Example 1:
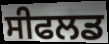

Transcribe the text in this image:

ਸੀਫਲਡ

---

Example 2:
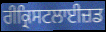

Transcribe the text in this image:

ਰੀਕ੍ਰਿਸਟਲਾਈਜ਼ਡ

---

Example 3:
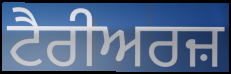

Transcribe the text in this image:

ਟੈਰੀਅਰਜ਼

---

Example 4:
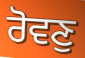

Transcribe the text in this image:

ਰੋਵਣੁ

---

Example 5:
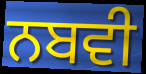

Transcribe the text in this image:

ਨਬਵੀ